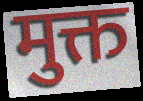
मुक्त